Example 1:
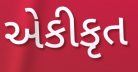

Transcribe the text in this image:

એકીકૃત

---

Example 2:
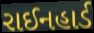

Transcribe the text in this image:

રાઈનહાર્ડ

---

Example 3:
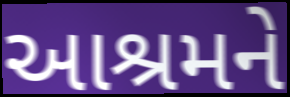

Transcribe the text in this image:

આશ્રમને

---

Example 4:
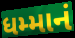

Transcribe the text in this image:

ધમ્માનં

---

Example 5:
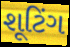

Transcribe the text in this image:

શૂટિંગ